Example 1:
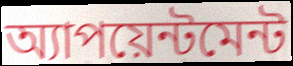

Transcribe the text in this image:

অ্যাপয়েন্টমেন্ট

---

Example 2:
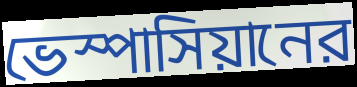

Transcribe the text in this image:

ভেস্পাসিয়ানের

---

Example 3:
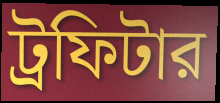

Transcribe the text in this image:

ট্রফিটার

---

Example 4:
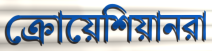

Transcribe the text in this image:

ক্রোয়েশিয়ানরা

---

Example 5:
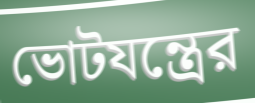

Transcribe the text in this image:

ভোটযন্ত্রের